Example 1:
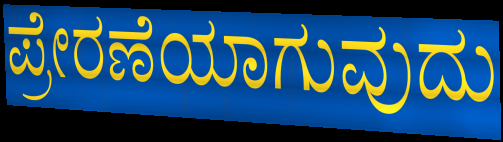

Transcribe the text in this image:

ಪ್ರೇರಣೆಯಾಗುವುದು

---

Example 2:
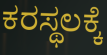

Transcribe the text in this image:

ಕರಸ್ಥಲಕ್ಕೆ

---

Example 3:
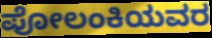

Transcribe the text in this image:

ಪೋಲಂಕಿಯವರ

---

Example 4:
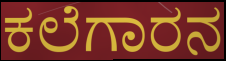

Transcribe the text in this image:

ಕಲೆಗಾರನ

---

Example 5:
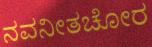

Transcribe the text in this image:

ನವನೀತಚೋರ